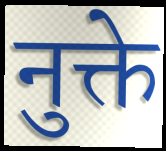
नुक्ते